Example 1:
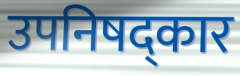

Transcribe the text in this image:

उपनिषद्कार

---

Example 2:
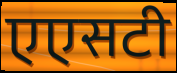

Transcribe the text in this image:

एएसटी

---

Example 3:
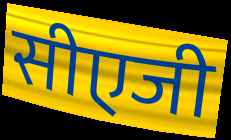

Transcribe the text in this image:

सीएजी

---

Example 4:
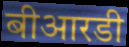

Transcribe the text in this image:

बीआरडी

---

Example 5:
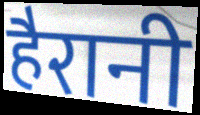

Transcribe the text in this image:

हैरानी